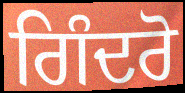
ਗਿੰਦਰੋ